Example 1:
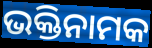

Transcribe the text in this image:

ଭକ୍ତିନାମକ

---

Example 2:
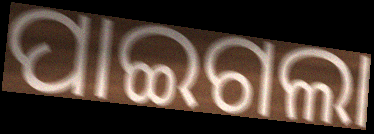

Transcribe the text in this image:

ପାଇଗଲା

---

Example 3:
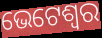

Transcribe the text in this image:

ଭେଟେଶ୍ୱର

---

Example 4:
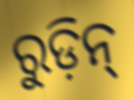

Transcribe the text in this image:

ରୁଡ଼ିନ୍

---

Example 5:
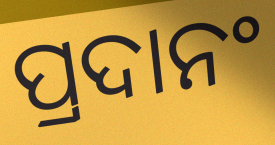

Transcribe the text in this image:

ପ୍ରଦାନଂ